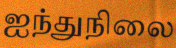
ஐந்துநிலை